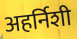
अहर्निशी